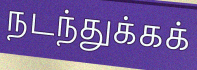
நடந்துக்கக்